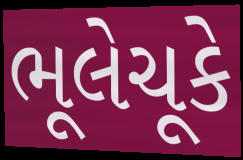
ભૂલેચૂકે